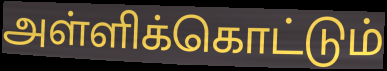
அள்ளிக்கொட்டும்